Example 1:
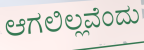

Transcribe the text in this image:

ಆಗಲಿಲ್ಲವೆಂದು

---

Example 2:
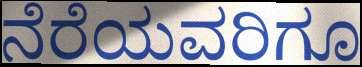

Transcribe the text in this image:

ನೆರೆಯವರಿಗೂ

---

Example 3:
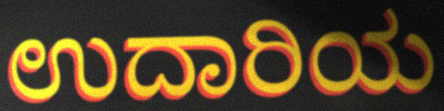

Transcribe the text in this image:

ಉದಾರಿಯ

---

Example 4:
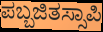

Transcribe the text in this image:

ಪಬ್ಬಜಿತಸ್ಸಾಪಿ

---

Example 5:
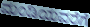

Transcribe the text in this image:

ಮಂಡಿಯವರೆಗೆ